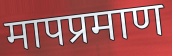
मापप्रमाण